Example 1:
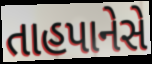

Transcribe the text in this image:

તાહપાનેસે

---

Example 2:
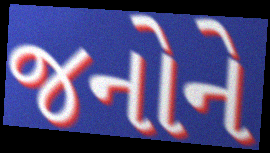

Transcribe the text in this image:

જનોને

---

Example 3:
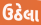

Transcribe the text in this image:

ઉઠેલા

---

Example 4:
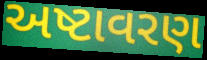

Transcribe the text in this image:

અષ્ટાવરણ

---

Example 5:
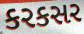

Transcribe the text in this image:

કરકસર